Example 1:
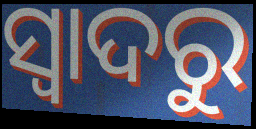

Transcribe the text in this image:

ସ୍ବାଦରୁ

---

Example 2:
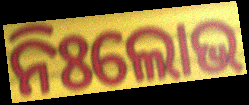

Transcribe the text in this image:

ନିଃଲୋଭ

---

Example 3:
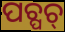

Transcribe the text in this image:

ପଚ୍ପଚ୍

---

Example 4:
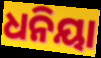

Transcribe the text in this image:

ଧନିୟା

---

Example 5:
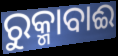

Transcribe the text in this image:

ରୁକ୍ମାବାଈ